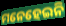
ମନେହେଇନି